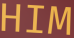
HIM